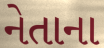
નેતાના